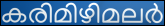
കരിമിഴിമലർ